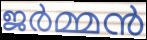
ജർമ്മൻ